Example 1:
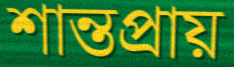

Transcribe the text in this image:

শান্তপ্রায়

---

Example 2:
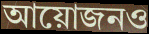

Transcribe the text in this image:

আয়োজনও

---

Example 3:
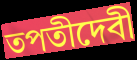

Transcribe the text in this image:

তপতীদেবী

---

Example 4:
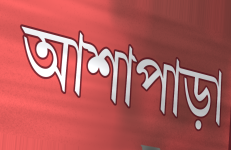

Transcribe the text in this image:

আশাপাড়া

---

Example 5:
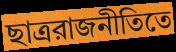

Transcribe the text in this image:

ছাত্ররাজনীতিতে